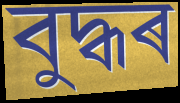
বুদ্ধৰ